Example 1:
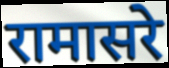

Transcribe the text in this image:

रामासरे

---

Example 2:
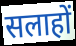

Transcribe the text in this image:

सलाहों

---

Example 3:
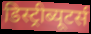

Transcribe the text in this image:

डिस्ट्रीब्यूटर्स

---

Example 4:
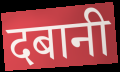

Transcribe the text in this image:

दबानी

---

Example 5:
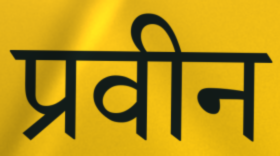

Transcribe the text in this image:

प्रवीन